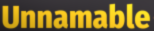
Unnamable